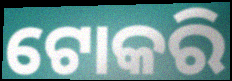
ଟୋକରି